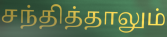
சந்தித்தாலும்